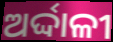
ଅର୍ଦ୍ଦାଳୀ